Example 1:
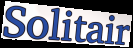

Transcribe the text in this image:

Solitair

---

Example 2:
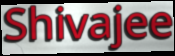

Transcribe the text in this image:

Shivajee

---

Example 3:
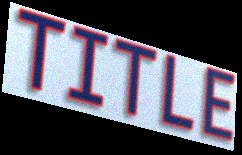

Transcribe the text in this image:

TITLE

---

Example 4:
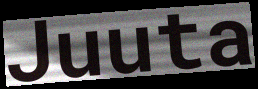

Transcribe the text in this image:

Juuta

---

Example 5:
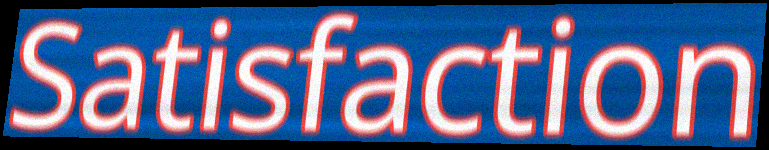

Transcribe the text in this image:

Satisfaction